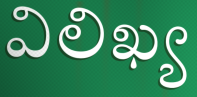
విలిఖ్య